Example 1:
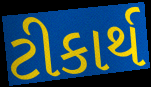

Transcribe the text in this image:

ટીકાર્થ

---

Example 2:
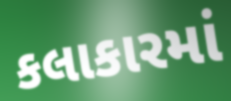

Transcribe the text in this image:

કલાકારમાં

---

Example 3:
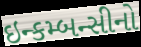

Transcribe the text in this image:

ઇન્કમ્બન્સીનો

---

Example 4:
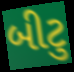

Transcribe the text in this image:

બીટુ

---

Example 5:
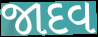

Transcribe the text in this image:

જાદવ